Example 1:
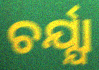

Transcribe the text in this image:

ଚର୍ଯ୍ଯା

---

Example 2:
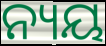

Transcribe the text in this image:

ନ୍ୟୟ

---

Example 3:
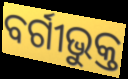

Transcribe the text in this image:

ବର୍ଗୀଭୁକ୍ତ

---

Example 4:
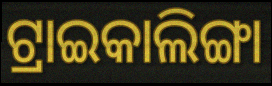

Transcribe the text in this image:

ଟ୍ରାଇକାଲିଙ୍ଗା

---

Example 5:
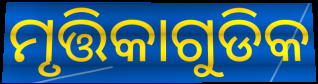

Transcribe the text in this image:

ମୃତ୍ତିକାଗୁଡିକ